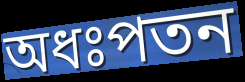
অধঃপতন